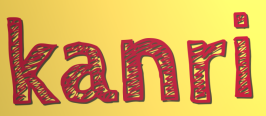
kanri